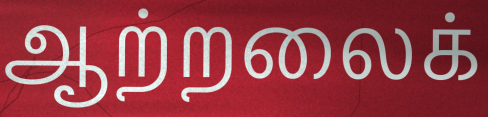
ஆற்றலைக்